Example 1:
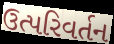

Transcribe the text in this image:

ઉત્પરિવર્તન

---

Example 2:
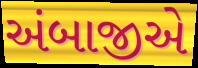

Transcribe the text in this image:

અંબાજીએ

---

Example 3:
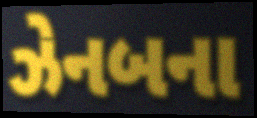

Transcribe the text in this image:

ઝેનબના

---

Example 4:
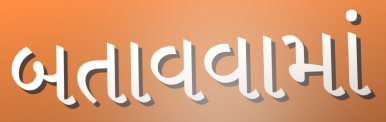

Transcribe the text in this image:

બતાવવામાં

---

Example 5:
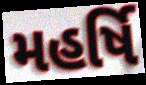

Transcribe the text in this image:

મહર્ષિ